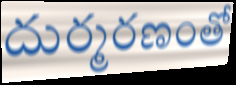
దుర్మరణంతో